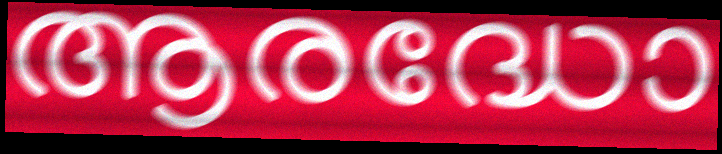
ആരദ്ധോ